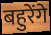
बहुरेंगे